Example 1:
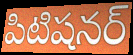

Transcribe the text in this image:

పిటిషనర్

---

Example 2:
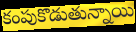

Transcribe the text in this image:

కంపుకొడుతున్నాయి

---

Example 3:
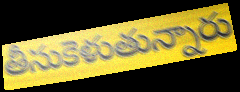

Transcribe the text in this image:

తీసుకెళుతున్నారు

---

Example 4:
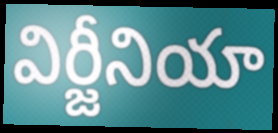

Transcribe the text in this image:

విర్జీనియా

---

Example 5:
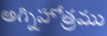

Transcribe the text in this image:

అగ్నిహోత్రము